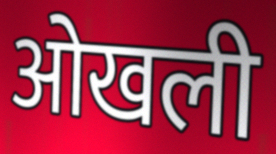
ओखली